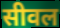
सीवल